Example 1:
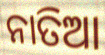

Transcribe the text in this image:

ନାତିଆ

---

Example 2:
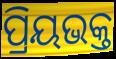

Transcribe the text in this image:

ପ୍ରିୟଭକ୍ତ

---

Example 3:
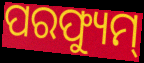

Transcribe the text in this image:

ପରଫ୍ୟୁମ୍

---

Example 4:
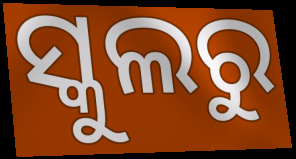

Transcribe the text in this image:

ସ୍କୁଲରୁ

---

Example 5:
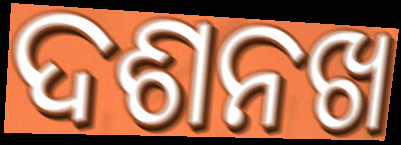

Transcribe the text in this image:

ଦଶନଖ